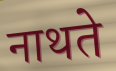
नाथते